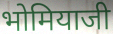
भोमियाजी